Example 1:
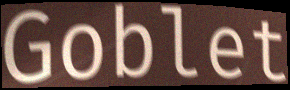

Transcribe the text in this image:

Goblet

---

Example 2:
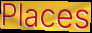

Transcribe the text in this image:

Places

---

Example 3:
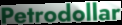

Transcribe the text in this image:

Petrodollar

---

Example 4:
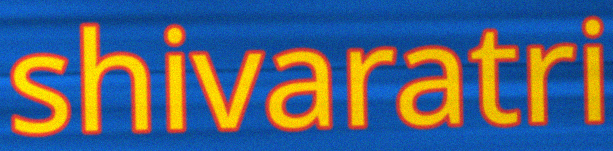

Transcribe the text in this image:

shivaratri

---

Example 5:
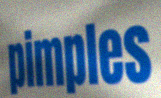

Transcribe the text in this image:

pimples